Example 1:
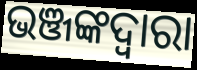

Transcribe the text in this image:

ଭଞ୍ଜଙ୍କଦ୍ୱାରା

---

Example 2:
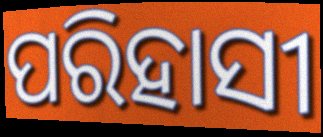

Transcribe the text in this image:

ପରିହାସୀ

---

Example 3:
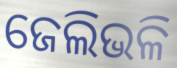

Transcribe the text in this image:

ଜେଲିଭଳି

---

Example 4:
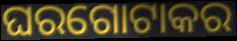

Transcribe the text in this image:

ଘରଗୋଟାକର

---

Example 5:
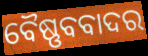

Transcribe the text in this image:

ବୈଷ୍ଣବବାଦର